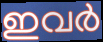
ഇവർ